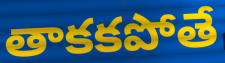
తాకకపోతే